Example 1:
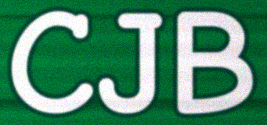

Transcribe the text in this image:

CJB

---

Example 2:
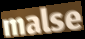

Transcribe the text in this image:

malse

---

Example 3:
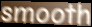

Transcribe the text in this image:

smooth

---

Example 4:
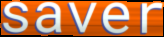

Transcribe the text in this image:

saver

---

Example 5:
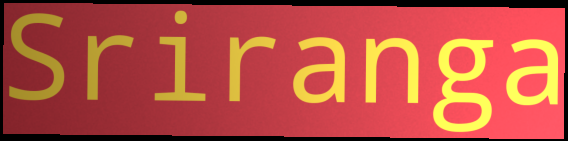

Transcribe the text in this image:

Sriranga